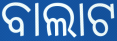
ବାଲାଟ